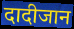
दादीजान